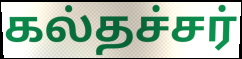
கல்தச்சர்